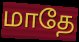
மாதே